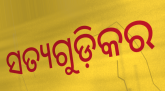
ସତ୍ୟଗୁଡ଼ିକର